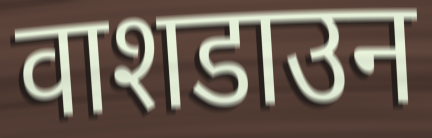
वाशडाउन